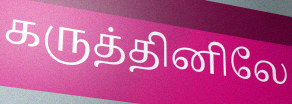
கருத்தினிலே